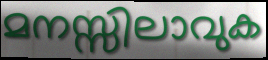
മനസ്സിലാവുക